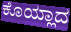
ಕೊಯ್ಲಾದ